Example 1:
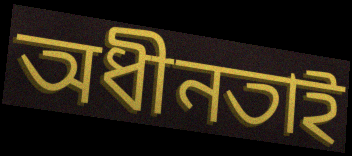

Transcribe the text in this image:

অধীনতাই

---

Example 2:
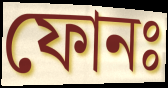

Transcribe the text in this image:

ফোনঃ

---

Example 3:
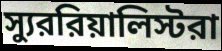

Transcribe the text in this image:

স্যুররিয়ালিস্টরা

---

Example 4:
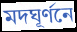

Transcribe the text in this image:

মদঘূর্ণনে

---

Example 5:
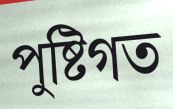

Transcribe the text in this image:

পুষ্টিগত